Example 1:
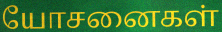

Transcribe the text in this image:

யோசனைகள்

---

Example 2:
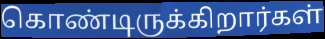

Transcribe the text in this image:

கொண்டிருக்கிறார்கள்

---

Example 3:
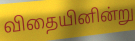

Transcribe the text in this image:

விதையினின்று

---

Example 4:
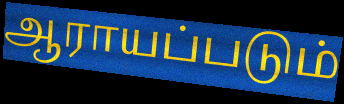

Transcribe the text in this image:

ஆராயப்படும்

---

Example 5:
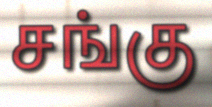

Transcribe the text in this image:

சங்கு